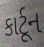
કાર્ટૂન